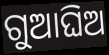
ଗୁଆଘିଅ